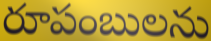
రూపంబులను